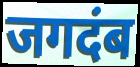
जगदंब